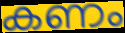
കണം